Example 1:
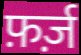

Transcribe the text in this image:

फ़र्ज़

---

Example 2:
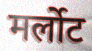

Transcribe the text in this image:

मर्लोट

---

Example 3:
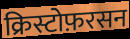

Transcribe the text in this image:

क्रिस्टोफ़रसन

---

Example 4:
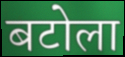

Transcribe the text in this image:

बटोला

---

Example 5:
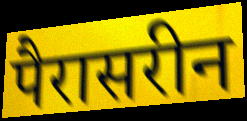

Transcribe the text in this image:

पैरासरीन